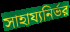
সাহায্যনির্ভর